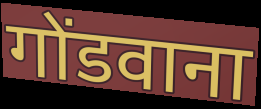
गोंडवाना